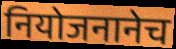
नियोजनानेच